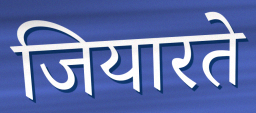
जियारते